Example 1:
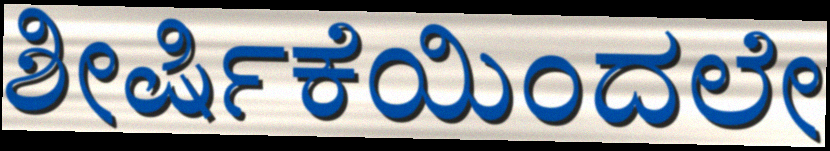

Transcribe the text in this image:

ಶೀರ್ಷಿಕೆಯಿಂದಲೇ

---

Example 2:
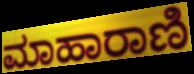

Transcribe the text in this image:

ಮಾಹಾರಾಣಿ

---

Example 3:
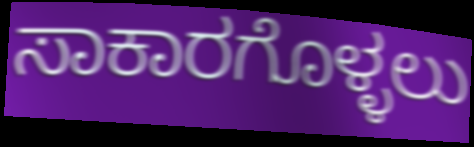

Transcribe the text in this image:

ಸಾಕಾರಗೊಳ್ಳಲು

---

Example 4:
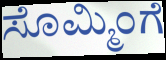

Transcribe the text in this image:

ಸೊಮ್ಮಿಂಗೆ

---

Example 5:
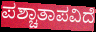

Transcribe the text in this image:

ಪಶ್ಚಾತಾಪವಿದೆ